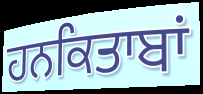
ਹਨਕਿਤਾਬਾਂ